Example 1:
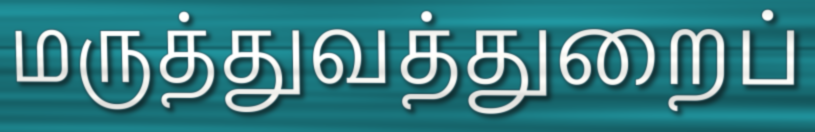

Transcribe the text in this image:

மருத்துவத்துறைப்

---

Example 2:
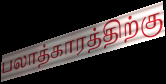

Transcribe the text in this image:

பலாத்காரத்திற்கு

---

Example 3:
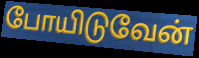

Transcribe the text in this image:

போயிடுவேன்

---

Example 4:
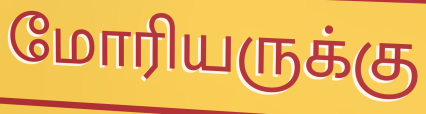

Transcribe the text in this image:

மோரியருக்கு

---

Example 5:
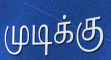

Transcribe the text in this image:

முடிக்கு